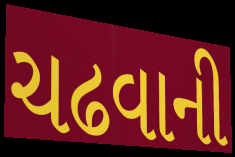
ચઢવાની